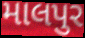
માલપુર